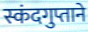
स्कंदगुप्ताने